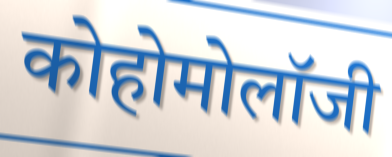
कोहोमोलॉजी